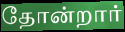
தோன்றார்